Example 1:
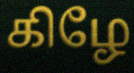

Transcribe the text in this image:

கிழே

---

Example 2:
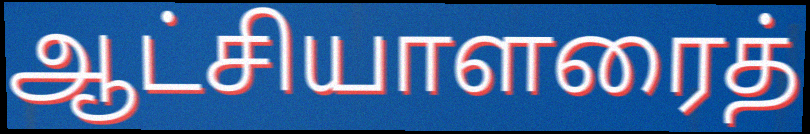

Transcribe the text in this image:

ஆட்சியாளரைத்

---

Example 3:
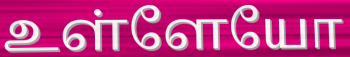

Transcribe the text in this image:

உள்ளேயோ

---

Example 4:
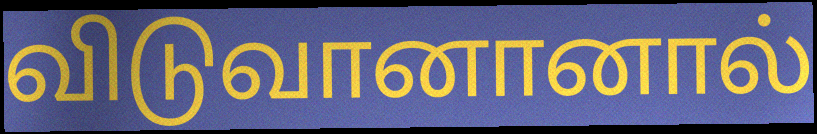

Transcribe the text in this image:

விடுவானானால்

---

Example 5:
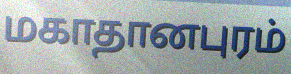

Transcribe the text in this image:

மகாதானபுரம்